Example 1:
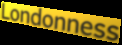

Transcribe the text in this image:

Londonness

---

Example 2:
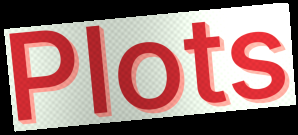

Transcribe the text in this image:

Plots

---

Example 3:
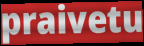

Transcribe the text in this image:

praivetu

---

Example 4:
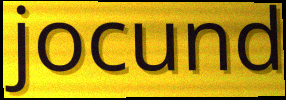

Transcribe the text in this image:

jocund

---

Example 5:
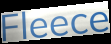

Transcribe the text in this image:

Fleece